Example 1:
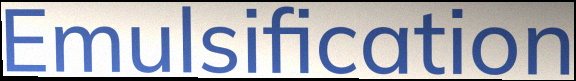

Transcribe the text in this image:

Emulsification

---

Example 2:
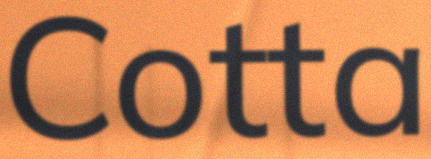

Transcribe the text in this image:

Cotta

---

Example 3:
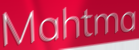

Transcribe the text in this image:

Mahtma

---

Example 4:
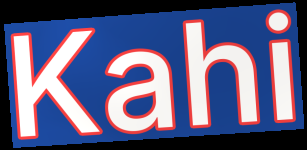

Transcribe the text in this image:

Kahi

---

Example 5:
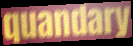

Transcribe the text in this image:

quandary